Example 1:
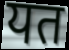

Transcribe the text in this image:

यत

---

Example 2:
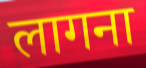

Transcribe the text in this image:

लागना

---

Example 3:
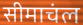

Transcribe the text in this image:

सीमाचंल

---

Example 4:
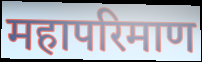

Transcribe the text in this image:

महापरिमाण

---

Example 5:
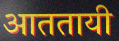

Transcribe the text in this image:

आततायी